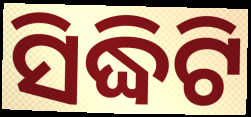
ସିଦ୍ଧିଟି